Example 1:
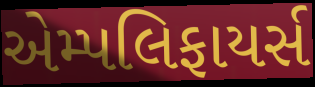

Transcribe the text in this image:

એમ્પલિફાયર્સ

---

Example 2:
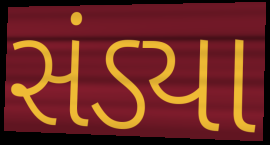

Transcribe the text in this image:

સંડ્યા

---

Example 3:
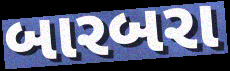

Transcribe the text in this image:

બારબરા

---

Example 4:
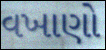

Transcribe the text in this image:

વખાણો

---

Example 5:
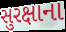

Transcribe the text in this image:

સુરક્ષાના